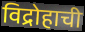
विद्रोहाची